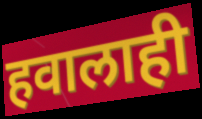
हवालाही